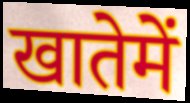
खातेमें